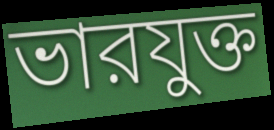
ভারযুক্ত